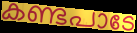
കണ്ടപാടേ